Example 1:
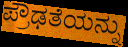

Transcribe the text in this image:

ಪ್ರೌಢತೆಯನ್ನು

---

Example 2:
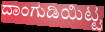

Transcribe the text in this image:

ದಾಂಗುಡಿಯಿಟ್ಟ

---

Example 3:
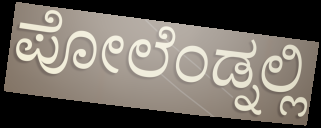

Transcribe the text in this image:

ಪೋಲೆಂಡ್ನಲ್ಲಿ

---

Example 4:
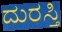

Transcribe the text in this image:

ದುರಸ್ತಿ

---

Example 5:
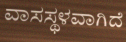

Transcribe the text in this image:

ವಾಸಸ್ಥಳವಾಗಿದೆ